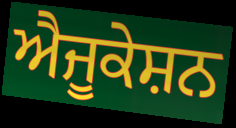
ਐਜੂਕੇਸ਼ਨ